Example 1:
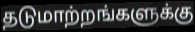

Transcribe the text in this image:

தடுமாற்றங்களுக்கு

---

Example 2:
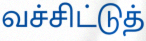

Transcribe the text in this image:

வச்சிட்டுத்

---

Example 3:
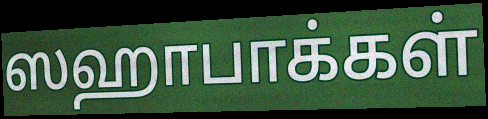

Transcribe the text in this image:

ஸஹாபாக்கள்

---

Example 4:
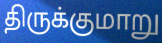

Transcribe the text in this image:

திருக்குமாறு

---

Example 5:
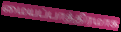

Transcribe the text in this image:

மையப்பாத்திரமாக